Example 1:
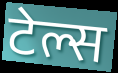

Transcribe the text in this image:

टेल्स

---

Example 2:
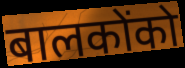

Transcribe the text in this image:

बालकोंको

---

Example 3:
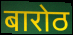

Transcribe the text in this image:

बारोठ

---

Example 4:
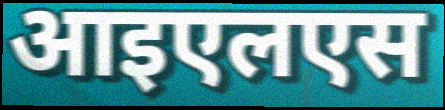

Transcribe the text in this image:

आइएलएस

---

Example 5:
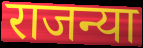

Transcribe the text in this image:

राजन्या